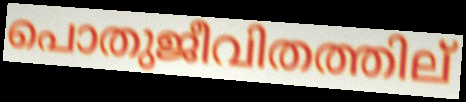
പൊതുജീവിതത്തില്